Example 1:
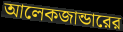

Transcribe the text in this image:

আলেকজান্ডারের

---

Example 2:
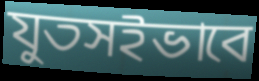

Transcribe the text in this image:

যুতসইভাবে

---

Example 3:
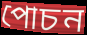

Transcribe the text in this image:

পোচন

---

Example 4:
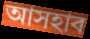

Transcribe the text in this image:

আসহাব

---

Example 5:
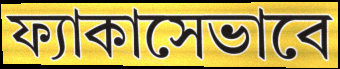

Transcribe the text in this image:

ফ্যাকাসেভাবে